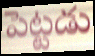
పెట్టడు